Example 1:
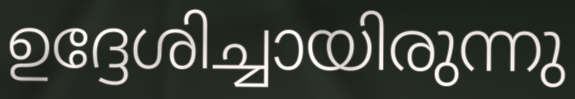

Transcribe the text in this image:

ഉദ്ദേശിച്ചായിരുന്നു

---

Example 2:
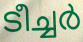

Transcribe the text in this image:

ടീച്ചർ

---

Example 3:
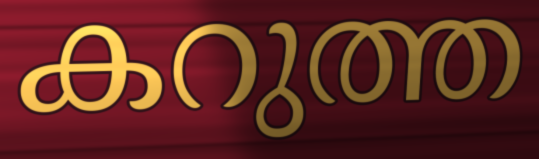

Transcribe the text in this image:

കറുത്ത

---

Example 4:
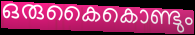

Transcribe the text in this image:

ഒരുകൈകൊണ്ടും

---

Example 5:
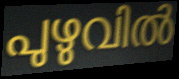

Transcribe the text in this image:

പുഴുവിൽ